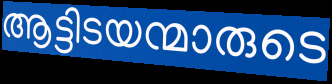
ആട്ടിടയന്മാരുടെ